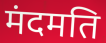
मंदमति